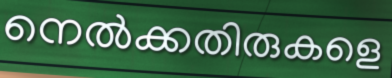
നെൽക്കതിരുകളെ